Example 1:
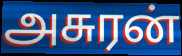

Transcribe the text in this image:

அசுரன்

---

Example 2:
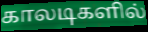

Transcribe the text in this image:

காலடிகளில்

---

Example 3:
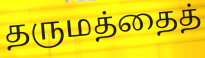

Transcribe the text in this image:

தருமத்தைத்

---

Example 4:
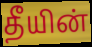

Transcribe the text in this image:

தீயின்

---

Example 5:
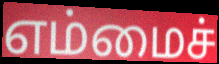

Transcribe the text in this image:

எம்மைச்